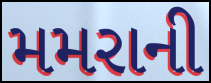
મમરાની